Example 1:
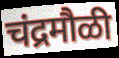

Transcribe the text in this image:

चंद्रमौळी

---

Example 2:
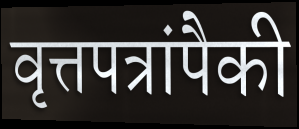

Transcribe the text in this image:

वृत्तपत्रांपैकी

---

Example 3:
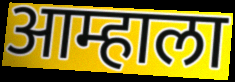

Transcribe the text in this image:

आम्हाला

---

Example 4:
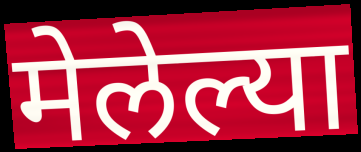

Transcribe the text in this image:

मेलेल्या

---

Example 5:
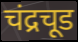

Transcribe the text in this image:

चंद्रचूड